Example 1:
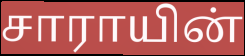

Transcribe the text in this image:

சாராயின்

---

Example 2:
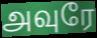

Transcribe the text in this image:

அவுரே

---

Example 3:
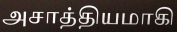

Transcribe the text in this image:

அசாத்தியமாகி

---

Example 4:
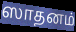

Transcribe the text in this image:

ஸாதனம்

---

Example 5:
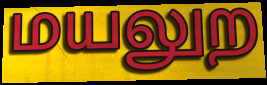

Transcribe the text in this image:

மயலுற